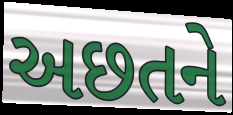
અછતને